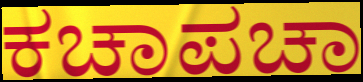
ಕಚಾಪಚಾ